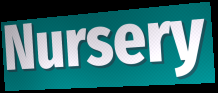
Nursery